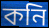
কনি